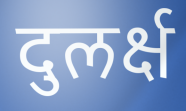
दुलर्क्ष